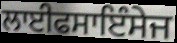
ਲਾਈਫਸਾਇੰਸੇਜ